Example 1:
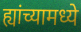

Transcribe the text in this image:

ह्यांच्यामध्ये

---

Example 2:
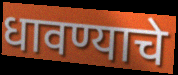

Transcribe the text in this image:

धावण्याचे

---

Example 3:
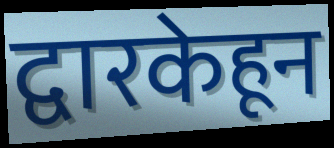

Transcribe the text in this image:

द्वारकेहून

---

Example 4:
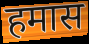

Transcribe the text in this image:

हमास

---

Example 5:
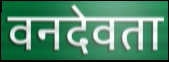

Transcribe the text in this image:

वनदेवता